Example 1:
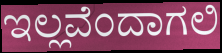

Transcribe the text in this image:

ಇಲ್ಲವೆಂದಾಗಲಿ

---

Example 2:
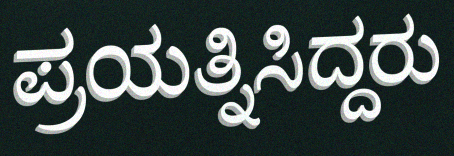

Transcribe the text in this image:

ಪ್ರಯತ್ನಿಸಿದ್ದರು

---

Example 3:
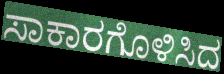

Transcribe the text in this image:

ಸಾಕಾರಗೊಳಿಸಿದ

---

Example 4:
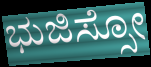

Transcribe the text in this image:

ಭುಜಿಸ್ಸೋ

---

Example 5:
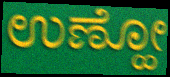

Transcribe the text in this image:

ಉಣ್ಹೋ